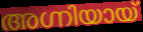
അഗ്നിയായ്